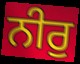
ਨੀਰੁ